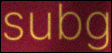
subg